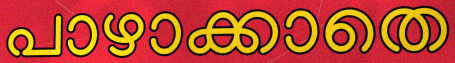
പാഴാക്കാതെ